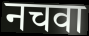
नचवा